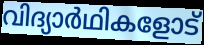
വിദ്യാർഥികളോട്